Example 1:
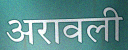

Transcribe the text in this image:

अरावली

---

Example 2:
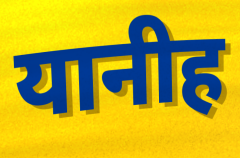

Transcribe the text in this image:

यानीह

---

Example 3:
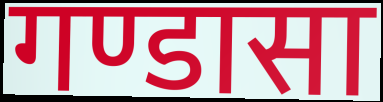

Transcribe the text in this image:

गण्डासा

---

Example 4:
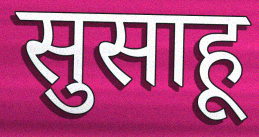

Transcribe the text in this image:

सुसाहू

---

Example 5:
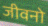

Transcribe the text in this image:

जीवनो